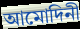
আমোদিনী